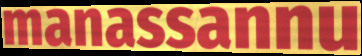
manassannu